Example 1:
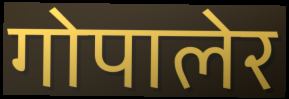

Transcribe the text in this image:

गोपालेर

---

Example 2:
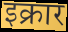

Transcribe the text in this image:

इक्रार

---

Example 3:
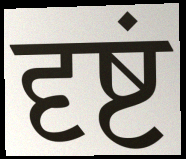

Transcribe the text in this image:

दृष्टं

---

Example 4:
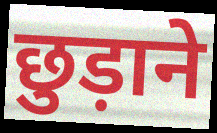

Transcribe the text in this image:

छुड़ाने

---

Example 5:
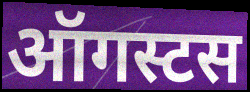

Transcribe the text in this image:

ऑगस्टस